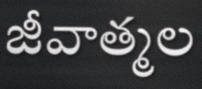
జీవాత్మల